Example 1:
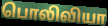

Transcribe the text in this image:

பொலிவியா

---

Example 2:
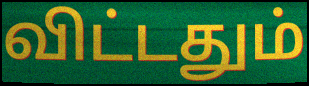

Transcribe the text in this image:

விட்டதும்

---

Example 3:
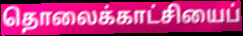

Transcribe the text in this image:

தொலைக்காட்சியைப்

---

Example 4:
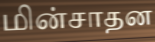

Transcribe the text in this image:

மின்சாதன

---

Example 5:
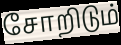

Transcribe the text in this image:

சோறிடும்